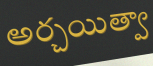
అర్చయిత్వా